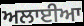
ਅਲਾਈਆ